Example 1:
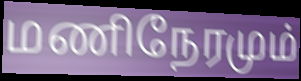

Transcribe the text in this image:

மணிநேரமும்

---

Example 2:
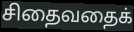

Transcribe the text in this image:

சிதைவதைக்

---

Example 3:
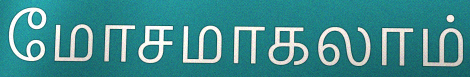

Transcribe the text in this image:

மோசமாகலாம்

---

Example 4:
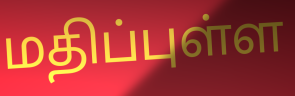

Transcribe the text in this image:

மதிப்புள்ள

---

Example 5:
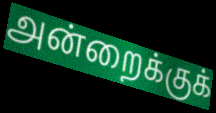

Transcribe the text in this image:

அன்றைக்குக்